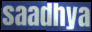
saadhya